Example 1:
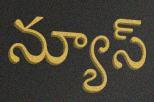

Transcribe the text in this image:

న్యూస్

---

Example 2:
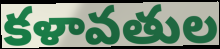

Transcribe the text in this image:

కళావతుల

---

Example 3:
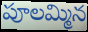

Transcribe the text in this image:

పూలమ్మిన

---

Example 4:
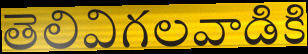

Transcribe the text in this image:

తెలివిగలవాడికి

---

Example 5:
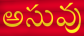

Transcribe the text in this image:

అసువు